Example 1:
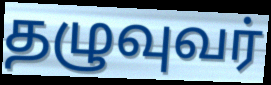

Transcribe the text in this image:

தழுவுவர்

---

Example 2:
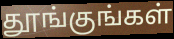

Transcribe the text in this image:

தூங்குங்கள்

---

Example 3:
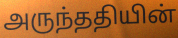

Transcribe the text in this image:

அருந்ததியின்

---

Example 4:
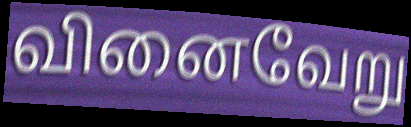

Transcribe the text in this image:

வினைவேறு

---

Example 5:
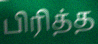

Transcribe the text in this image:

பிரித்த